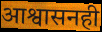
आश्वासनही